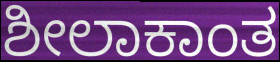
ಶೀಲಾಕಾಂತ